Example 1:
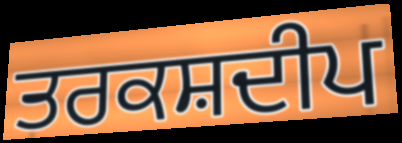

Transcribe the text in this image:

ਤਰਕਸ਼ਦੀਪ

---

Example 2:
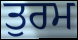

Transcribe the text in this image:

ਤੁਰਮ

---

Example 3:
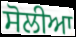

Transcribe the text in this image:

ਸੋਲੀਆ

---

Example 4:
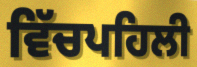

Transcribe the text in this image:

ਵਿੱਚਪਹਿਲੀ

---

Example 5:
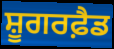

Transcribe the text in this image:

ਸ਼ੂਗਰਫ਼ੈਡ